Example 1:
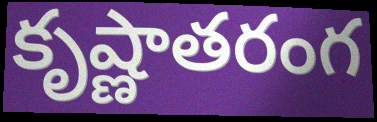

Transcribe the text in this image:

కృష్ణాతరంగ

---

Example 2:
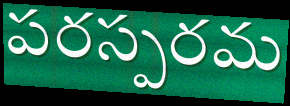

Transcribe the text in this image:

పరస్పరమ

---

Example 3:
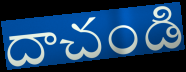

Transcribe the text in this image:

దాచండి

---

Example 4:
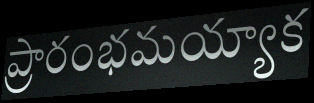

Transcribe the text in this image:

ప్రారంభమయ్యాక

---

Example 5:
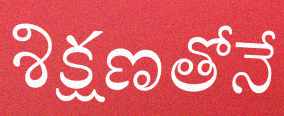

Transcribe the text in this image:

శిక్షణతోనే